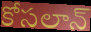
కోసలాన్